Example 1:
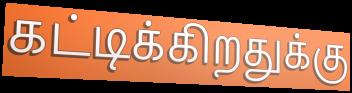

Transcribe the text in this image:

கட்டிக்கிறதுக்கு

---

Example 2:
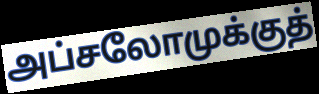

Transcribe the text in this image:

அப்சலோமுக்குத்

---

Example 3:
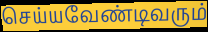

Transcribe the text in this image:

செய்யவேண்டிவரும்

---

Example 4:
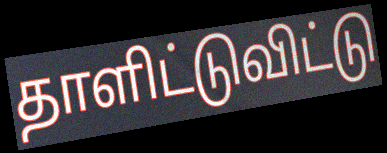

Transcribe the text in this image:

தாளிட்டுவிட்டு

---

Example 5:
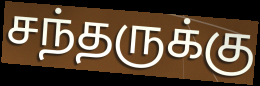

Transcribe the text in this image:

சந்தருக்கு